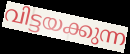
വിട്ടയക്കുന്ന